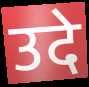
उदे